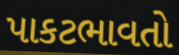
પાકટભાવતો